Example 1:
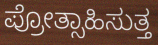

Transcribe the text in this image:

ಪ್ರೋತ್ಸಾಹಿಸುತ್ತ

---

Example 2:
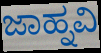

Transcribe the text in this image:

ಜಾಹ್ನವಿ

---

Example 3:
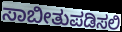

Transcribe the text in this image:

ಸಾಬೀತುಪಡಿಸಲಿ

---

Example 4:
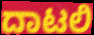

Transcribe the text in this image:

ದಾಟಲಿ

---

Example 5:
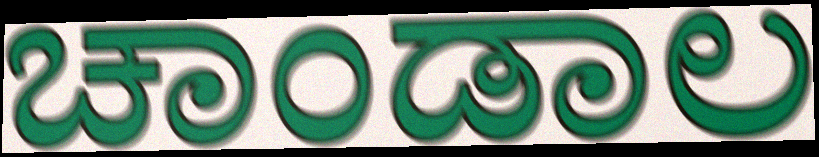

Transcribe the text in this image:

ಚಾಂಡಾಲ